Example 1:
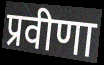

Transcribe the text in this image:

प्रवीणा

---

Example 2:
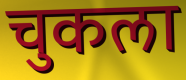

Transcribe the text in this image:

चुकला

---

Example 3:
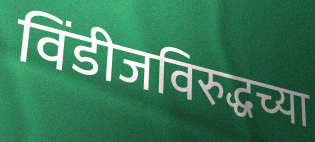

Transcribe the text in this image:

विंडीजविरुद्धच्या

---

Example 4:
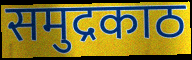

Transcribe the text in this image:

समुद्रकाठ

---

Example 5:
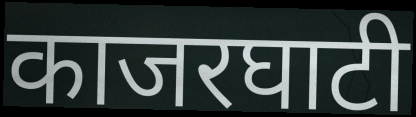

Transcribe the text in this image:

काजरघाटी